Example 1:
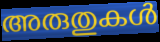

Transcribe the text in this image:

അരുതുകൾ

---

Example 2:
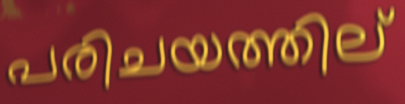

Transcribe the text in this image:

പരിചയത്തില്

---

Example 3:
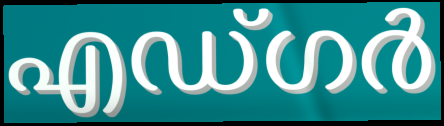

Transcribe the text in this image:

എഡ്ഗർ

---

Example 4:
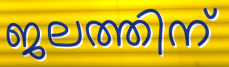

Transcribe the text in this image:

ജലത്തിന്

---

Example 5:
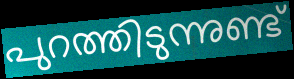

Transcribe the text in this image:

പുറത്തിടുന്നുണ്ട്